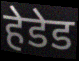
हेडेड